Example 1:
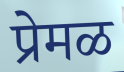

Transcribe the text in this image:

प्रेमळ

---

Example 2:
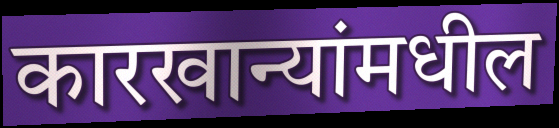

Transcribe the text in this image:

कारखान्यांमधील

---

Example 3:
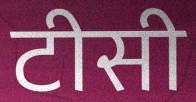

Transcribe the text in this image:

टीसी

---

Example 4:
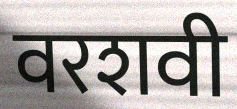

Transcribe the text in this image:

वरशवी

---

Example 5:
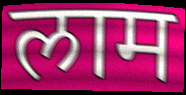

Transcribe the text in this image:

लाम